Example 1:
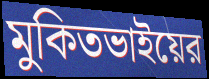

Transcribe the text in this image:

মুকিতভাইয়ের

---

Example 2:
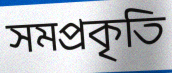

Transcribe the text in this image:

সমপ্রকৃতি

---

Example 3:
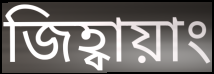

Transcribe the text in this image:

জিহ্বায়াং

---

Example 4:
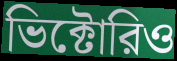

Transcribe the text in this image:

ভিক্টোরিও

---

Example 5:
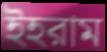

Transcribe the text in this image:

ইহরাম